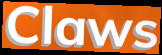
Claws